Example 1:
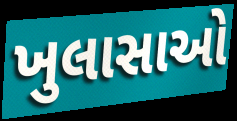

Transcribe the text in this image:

ખુલાસાઓ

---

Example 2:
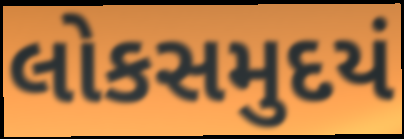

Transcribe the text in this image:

લોકસમુદયં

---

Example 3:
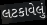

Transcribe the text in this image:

લટકાવેલું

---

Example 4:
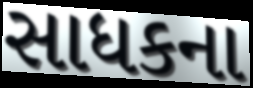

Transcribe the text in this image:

સાધકના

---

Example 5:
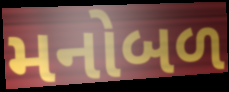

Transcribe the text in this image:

મનોબળ